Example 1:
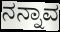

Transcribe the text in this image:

ನನ್ನಾವ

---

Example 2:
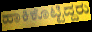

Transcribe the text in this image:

ಹಾಕಿಕೊಟ್ಟಿದ್ದರು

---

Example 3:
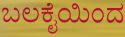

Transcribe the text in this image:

ಬಲಕೈಯಿಂದ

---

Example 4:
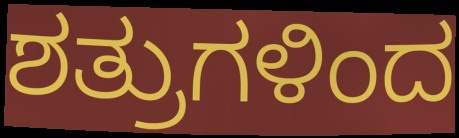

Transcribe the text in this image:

ಶತ್ರುಗಳಿಂದ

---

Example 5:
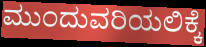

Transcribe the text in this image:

ಮುಂದುವರಿಯಲಿಕ್ಕೆ